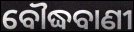
ବୌଦ୍ଧବାଣୀ